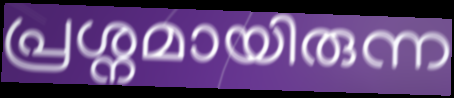
പ്രശ്നമായിരുന്ന